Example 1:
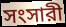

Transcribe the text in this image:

সংসারী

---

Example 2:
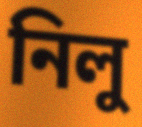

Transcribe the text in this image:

নিলু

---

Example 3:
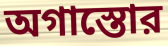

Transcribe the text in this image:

অগাস্তোর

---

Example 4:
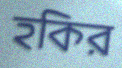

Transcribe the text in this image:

হকির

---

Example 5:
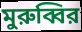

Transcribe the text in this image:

মুরুব্বির